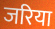
जरिया